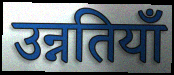
उन्नतियाँ